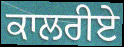
ਕਾਲਰੀਏ